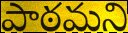
పాఠమని